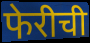
फेरीची